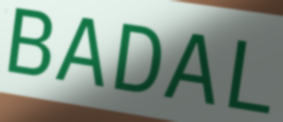
BADAL